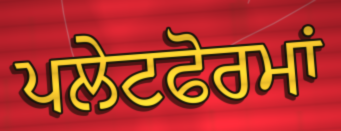
ਪਲੇਟਫੋਰਮਾਂ